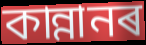
কান্নানৰ